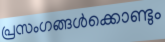
പ്രസംഗങ്ങൾക്കൊണ്ടും